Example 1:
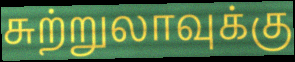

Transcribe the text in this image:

சுற்றுலாவுக்கு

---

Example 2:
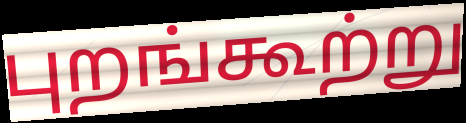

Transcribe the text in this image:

புறங்கூற்று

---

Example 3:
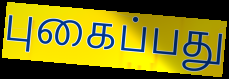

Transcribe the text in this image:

புகைப்பது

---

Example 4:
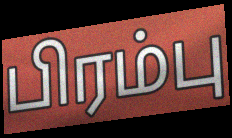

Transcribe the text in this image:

பிரம்பு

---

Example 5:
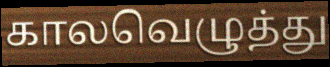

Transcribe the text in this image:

காலவெழுத்து